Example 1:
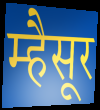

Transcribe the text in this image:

म्हैसूर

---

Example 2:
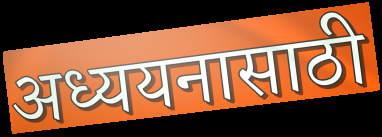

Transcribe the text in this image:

अध्ययनासाठी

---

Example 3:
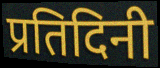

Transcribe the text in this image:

प्रतिदिनी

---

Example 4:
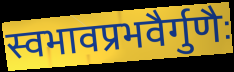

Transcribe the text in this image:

स्वभावप्रभवैर्गुणैः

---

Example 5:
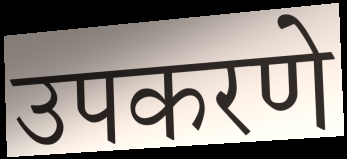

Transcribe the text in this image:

उपकरणे